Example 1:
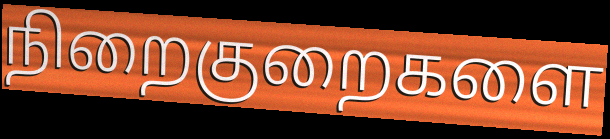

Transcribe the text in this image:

நிறைகுறைகளை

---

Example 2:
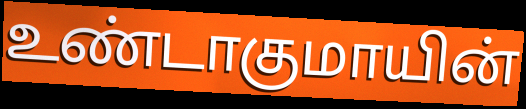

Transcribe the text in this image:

உண்டாகுமாயின்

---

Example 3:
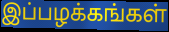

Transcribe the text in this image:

இப்பழக்கங்கள்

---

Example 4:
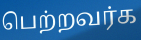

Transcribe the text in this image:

பெற்றவர்க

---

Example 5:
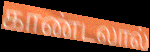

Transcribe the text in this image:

காண்டலால்